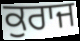
ਕੁਰਾਜ